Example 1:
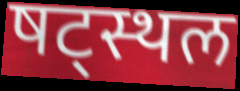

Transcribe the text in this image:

षट्स्थल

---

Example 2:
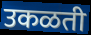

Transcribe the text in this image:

उकळती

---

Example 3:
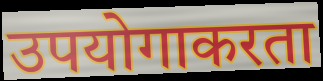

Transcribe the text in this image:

उपयोगाकरता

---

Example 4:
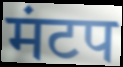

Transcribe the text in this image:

मंटप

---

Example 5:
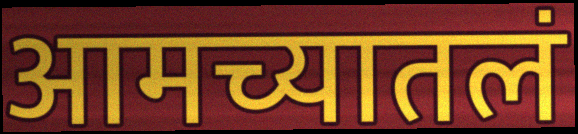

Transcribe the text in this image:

आमच्यातलं